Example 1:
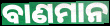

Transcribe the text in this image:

ବାଣମାନ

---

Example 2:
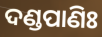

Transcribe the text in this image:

ଦଣ୍ଡପାଣିଃ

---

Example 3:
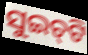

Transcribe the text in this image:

ସୁଇଚ୍‌ଟି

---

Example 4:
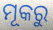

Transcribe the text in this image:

ମୂକରୁ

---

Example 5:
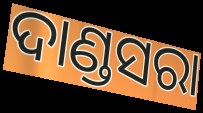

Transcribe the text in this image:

ଦାଣ୍ଡସରା